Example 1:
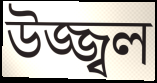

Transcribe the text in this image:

উজ্জ্বল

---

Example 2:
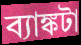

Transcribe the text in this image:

ব্যাঙ্কটা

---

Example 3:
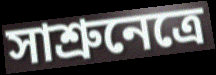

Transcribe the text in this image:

সাশ্রুনেত্রে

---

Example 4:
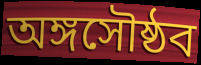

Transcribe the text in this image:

অঙ্গসৌষ্ঠব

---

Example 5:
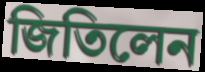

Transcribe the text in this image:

জিতিলেন